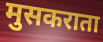
मुसकराता